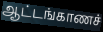
ஆட்டங்காணச்